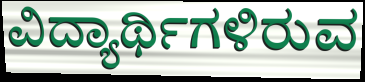
ವಿದ್ಯಾರ್ಥಿಗಳಿರುವ